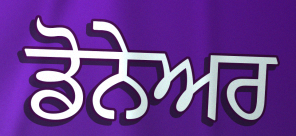
ਡੋਨੇਅਰ